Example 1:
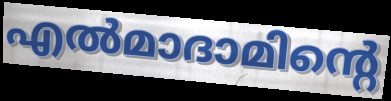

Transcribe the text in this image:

എൽമാദാമിന്റെ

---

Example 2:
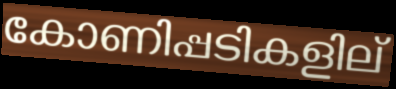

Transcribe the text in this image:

കോണിപ്പടികളില്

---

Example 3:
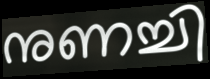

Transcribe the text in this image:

നുണച്ചി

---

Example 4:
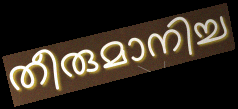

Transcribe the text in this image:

തീരുമാനിച്ച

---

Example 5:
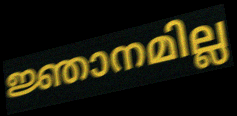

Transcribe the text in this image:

ജ്ഞാനമില്ല